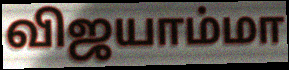
விஜயாம்மா